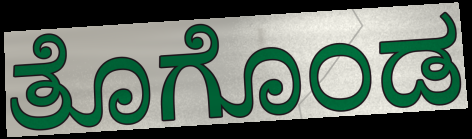
ತೊಗೊಂಡ